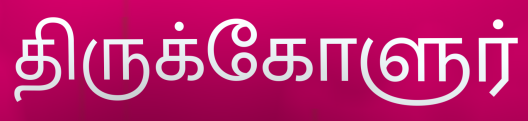
திருக்கோளுர்